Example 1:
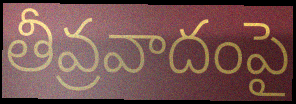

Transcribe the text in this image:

తీవ్రవాదంపై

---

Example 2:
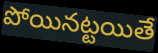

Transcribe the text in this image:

పోయినట్టయితే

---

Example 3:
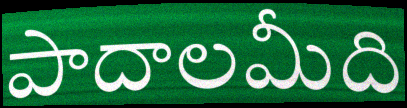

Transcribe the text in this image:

పాదాలమీది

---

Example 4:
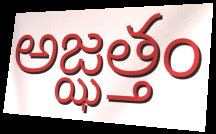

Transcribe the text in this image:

అజ్ఝత్తం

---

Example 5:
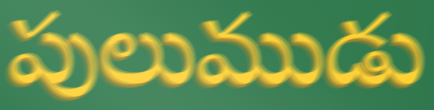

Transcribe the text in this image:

పులుముడు